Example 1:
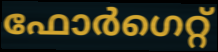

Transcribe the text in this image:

ഫോർഗെറ്റ്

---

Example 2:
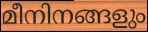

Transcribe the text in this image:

മീനിനങ്ങളും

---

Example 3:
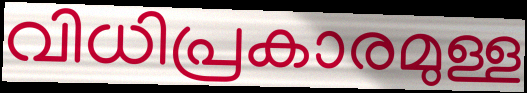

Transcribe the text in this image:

വിധിപ്രകാരമുള്ള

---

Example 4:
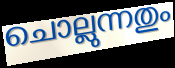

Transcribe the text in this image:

ചൊല്ലുന്നതും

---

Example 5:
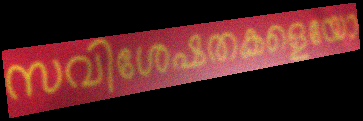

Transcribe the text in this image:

സവിശേഷതകളെയോ